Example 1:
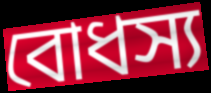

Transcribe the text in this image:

বোধস্য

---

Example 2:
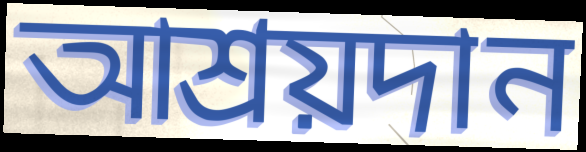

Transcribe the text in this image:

আশ্রয়দান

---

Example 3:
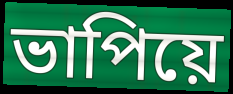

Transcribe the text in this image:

ভাপিয়ে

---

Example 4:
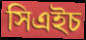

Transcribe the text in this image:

সিএইচ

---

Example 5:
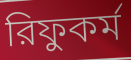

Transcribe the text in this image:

রিফুকর্ম